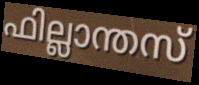
ഫില്ലാന്തസ്